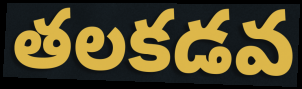
తలకడవ